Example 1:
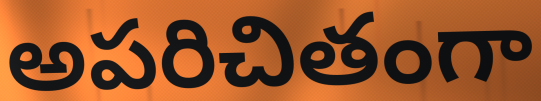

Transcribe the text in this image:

అపరిచితంగా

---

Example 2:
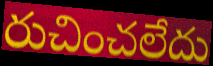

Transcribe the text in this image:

రుచించలేదు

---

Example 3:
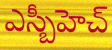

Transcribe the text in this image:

ఎస్బీహెచ్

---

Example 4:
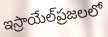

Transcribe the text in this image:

ఇస్రాయేల్‌ప్రజలలో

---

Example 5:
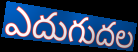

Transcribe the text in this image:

ఎదుగుదల